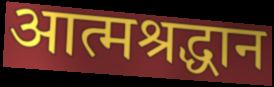
आत्मश्रद्धान